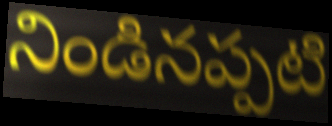
నిండినప్పటి